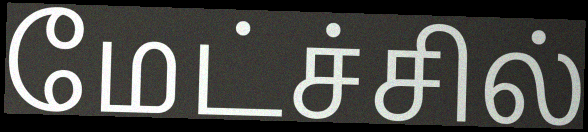
மேட்ச்சில்